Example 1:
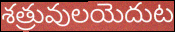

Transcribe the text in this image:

శత్రువులయెదుట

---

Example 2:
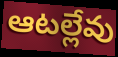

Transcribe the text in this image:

ఆటల్లేవు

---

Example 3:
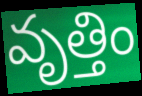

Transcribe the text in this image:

వృత్తిం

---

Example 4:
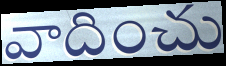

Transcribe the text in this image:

వాదించు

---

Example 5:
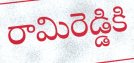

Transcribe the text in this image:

రామిరెడ్డికి